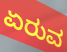
ಏರುವ